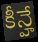
కీన్హే